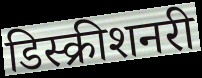
डिस्क्रीशनरी